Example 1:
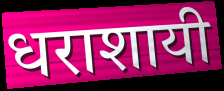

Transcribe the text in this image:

धराशायी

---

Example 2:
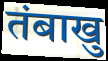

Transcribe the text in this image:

तंबाखु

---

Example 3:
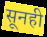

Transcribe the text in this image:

सूनही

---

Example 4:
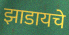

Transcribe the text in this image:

झाडायचे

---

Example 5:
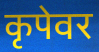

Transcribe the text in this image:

कृपेवर